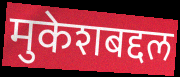
मुकेशबद्दल